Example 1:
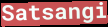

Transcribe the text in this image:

Satsangi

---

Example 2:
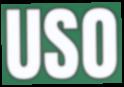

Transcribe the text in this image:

USO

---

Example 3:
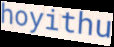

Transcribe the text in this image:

hoyithu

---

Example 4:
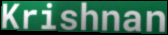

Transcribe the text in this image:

Krishnan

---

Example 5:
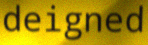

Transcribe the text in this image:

deigned